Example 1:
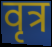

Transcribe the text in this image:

वृत्र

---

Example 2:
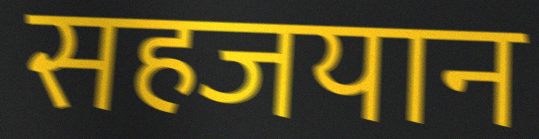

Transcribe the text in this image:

सहजयान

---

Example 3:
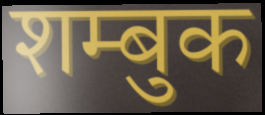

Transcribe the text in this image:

शम्बुक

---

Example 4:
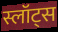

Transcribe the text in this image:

स्लॉट्स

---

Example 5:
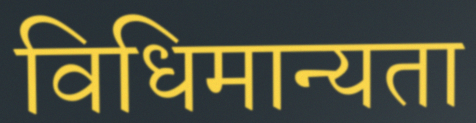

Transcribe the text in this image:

विधिमान्यता